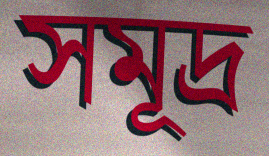
সমূদ্র